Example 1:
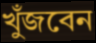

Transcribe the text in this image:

খুঁজবেন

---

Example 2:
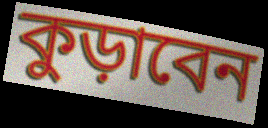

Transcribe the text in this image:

কুড়াবেন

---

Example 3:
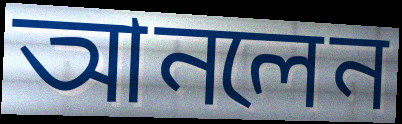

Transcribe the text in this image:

আনলেন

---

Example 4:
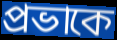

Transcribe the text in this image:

প্রভাকে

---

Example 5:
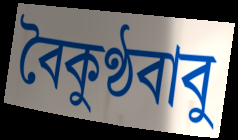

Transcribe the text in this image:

বৈকুণ্ঠবাবু